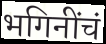
भगिनींचं